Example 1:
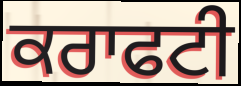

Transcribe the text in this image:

ਕਰਾਫਟੀ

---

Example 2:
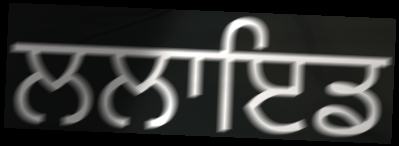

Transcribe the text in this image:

ਲਲਾਇਡ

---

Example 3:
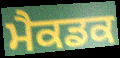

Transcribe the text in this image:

ਮੈਕਡਕ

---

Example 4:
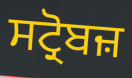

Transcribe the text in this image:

ਸਟ੍ਰੋਬਜ਼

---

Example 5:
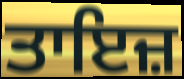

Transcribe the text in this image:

ਤਾਇਜ਼